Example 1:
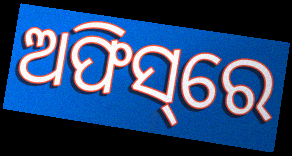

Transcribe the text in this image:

ଅଫିସ୍‌ରେ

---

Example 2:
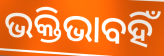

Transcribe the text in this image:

ଭକ୍ତିଭାବହିଁ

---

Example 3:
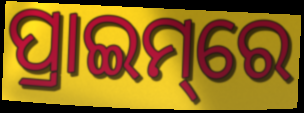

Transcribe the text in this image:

ପ୍ରାଇମ୍‌ରେ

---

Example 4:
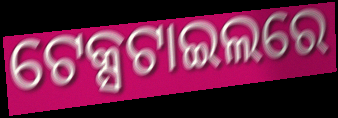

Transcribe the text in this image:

ଟେକ୍ସଟାଇଲରେ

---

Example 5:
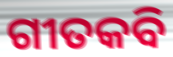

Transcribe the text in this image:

ଗୀତକବି